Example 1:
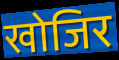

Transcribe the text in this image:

खोजिर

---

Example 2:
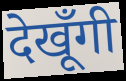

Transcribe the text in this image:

देखूँगी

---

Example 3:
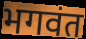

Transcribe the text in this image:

भगवंत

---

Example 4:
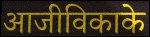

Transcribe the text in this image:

आजीविकाके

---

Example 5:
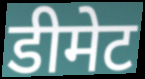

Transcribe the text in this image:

डीमेट